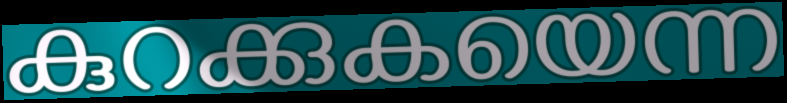
കുറക്കുകയെന്ന